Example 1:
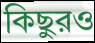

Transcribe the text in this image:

কিছুরও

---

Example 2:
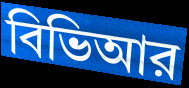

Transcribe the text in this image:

বিভিআর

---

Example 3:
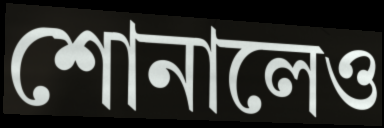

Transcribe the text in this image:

শোনালেও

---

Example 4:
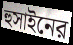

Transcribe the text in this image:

হুসাইনের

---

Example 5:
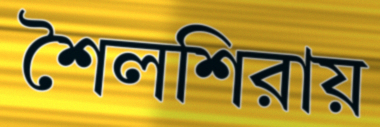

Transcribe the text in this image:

শৈলশিরায়